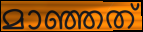
മാഞ്ഞത്